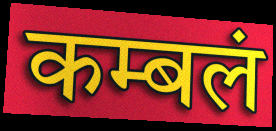
कम्बलं